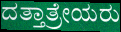
ದತ್ತಾತ್ರೇಯರು